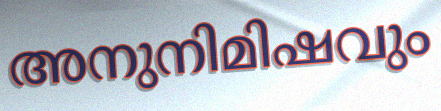
അനുനിമിഷവും